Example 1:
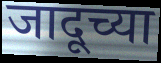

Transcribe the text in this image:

जादूच्या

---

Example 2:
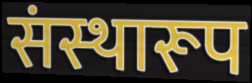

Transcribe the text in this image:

संस्थारूप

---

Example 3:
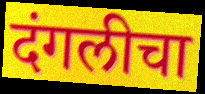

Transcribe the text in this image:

दंगलीचा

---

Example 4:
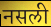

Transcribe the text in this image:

नसली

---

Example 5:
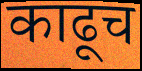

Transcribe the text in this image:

काढूच